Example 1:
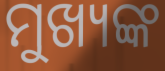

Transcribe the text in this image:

ମୁଖ୍ୟଙ୍କ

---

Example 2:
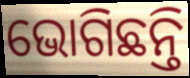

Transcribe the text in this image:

ଭୋଗିଛନ୍ତି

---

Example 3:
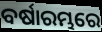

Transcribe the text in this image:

ବର୍ଷାରମ୍ଭରେ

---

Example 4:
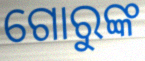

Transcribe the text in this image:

ଗୋରୁଙ୍କ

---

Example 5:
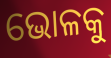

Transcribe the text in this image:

ଭୋଳକୁ